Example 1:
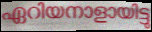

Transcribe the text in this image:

ഏറിയനാളായിട്ടു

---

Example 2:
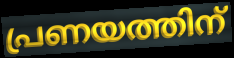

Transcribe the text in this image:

പ്രണയത്തിന്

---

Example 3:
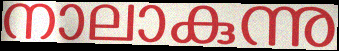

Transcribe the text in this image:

നാലാകുന്നു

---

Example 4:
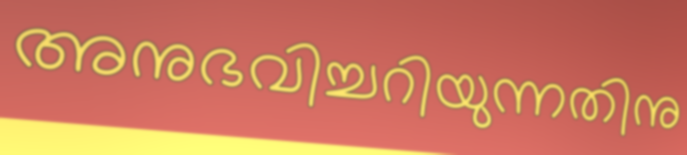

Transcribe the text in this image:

അനുഭവിച്ചറിയുന്നതിനു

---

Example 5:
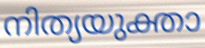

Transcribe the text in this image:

നിത്യയുക്താ